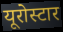
यूरोस्टार